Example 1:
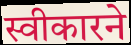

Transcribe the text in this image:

स्वीकारने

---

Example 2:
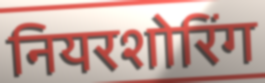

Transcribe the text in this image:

नियरशोरिंग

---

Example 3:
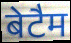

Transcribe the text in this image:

बेटैम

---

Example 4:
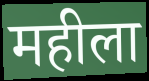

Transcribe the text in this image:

महीला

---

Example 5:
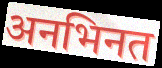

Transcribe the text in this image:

अनभिनत